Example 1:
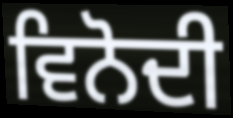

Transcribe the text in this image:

ਵਿਨੋਦੀ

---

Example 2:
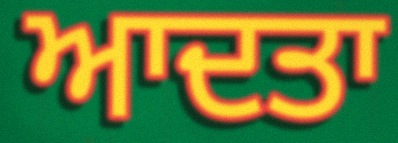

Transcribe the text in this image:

ਆਦਤਾ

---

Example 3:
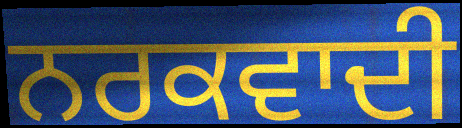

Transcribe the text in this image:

ਨਰਕਵਾਦੀ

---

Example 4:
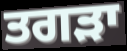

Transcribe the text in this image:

ਤਗੜਾ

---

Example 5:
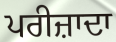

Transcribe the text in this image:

ਪਰੀਜ਼ਾਦਾ